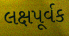
લક્ષપૂર્વક